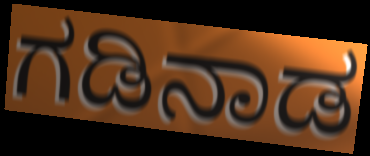
ಗಡಿನಾಡ